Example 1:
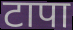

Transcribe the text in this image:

टापा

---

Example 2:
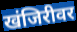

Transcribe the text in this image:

खंजिरीवर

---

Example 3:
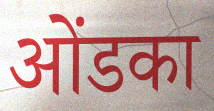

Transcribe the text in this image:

ओंडका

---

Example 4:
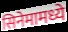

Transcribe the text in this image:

सिनेमामध्ये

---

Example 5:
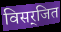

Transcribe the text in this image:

विसर्जित